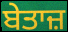
ਬੇਤਾਜ਼